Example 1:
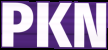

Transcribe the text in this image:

PKN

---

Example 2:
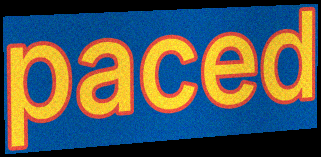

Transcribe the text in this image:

paced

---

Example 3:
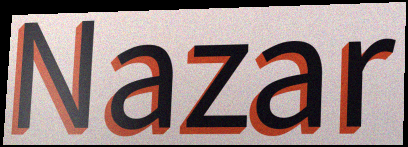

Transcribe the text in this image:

Nazar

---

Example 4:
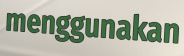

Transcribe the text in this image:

menggunakan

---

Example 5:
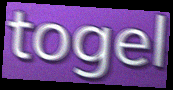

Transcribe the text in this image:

togel